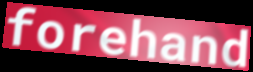
forehand